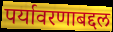
पर्यावरणाबद्दल